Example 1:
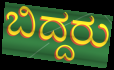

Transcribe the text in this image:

ಬಿದ್ದರು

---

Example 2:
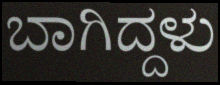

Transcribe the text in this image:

ಬಾಗಿದ್ದಳು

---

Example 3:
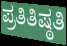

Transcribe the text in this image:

ಪ್ರತಿತಿಷ್ಠತಿ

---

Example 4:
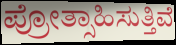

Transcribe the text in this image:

ಪ್ರೋತ್ಸಾಹಿಸುತ್ತಿವೆ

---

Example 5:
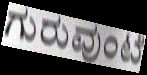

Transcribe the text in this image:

ಗುರುವುಂಟೆ